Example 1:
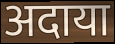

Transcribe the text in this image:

अदाया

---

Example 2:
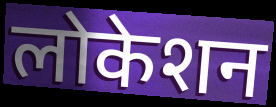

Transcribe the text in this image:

लोकेशन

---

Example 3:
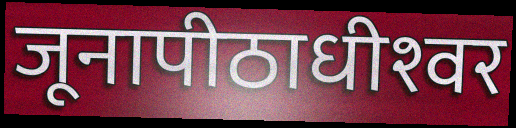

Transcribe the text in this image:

जूनापीठाधीश्वर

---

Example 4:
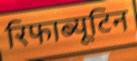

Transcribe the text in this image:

रिफाब्यूटिन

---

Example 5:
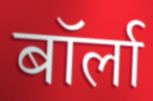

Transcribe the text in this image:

बॉर्ला